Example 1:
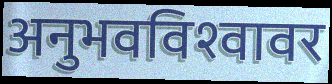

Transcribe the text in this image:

अनुभवविश्वावर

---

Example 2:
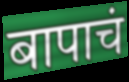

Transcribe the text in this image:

बापाचं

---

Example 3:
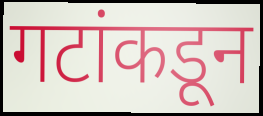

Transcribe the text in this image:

गटांकडून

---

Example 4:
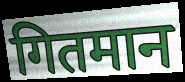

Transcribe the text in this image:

गितमान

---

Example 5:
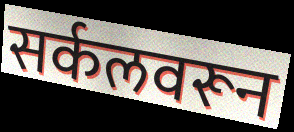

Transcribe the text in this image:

सर्कलवरून